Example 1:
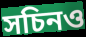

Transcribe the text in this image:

সচিনও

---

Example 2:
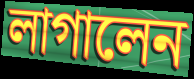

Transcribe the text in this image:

লাগালেন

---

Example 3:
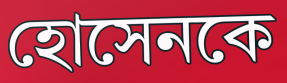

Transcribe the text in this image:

হোসেনকে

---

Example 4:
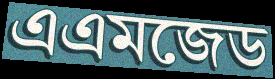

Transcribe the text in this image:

এএমজেড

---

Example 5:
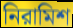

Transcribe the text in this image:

নিরামিশ